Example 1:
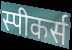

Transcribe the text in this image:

स्पीकर्स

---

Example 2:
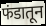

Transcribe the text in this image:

फंडातून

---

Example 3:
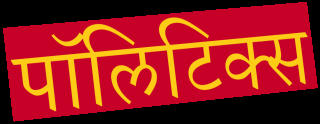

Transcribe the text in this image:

पॉलिटिक्स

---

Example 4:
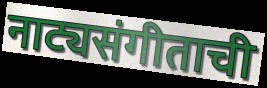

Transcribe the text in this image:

नाट्यसंगीताची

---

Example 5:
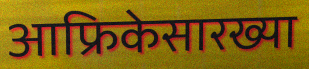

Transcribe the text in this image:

आफ्रिकेसारख्या